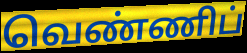
வெண்ணிப்